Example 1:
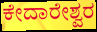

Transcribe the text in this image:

ಕೇದಾರೇಶ್ವರ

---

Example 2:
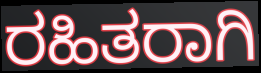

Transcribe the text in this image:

ರಹಿತರಾಗಿ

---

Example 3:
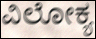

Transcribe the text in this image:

ವಿಲೋಕ್ಯ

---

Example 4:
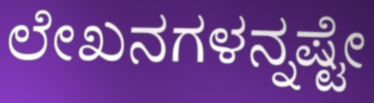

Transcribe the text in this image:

ಲೇಖನಗಳನ್ನಷ್ಟೇ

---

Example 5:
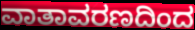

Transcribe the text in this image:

ವಾತಾವರಣದಿಂದ